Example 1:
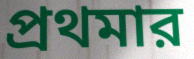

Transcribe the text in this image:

প্রথমার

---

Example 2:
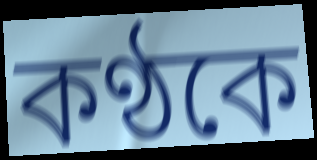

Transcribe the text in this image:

কণ্ঠকে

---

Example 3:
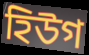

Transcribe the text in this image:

হিউগ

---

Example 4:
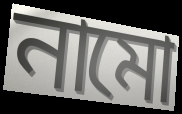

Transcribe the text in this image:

নামো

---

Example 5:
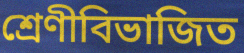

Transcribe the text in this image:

শ্রেণীবিভাজিত